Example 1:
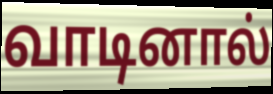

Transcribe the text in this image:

வாடினால்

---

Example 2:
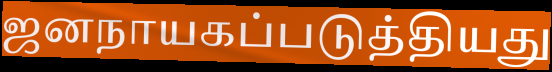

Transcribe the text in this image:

ஜனநாயகப்படுத்தியது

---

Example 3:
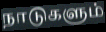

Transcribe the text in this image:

நாடுகளும்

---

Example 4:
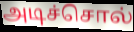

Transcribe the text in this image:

அடிச்சொல்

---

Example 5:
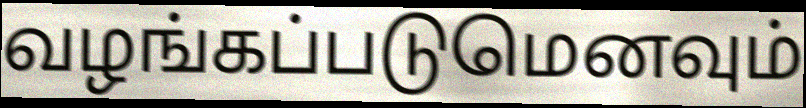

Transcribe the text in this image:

வழங்கப்படுமெனவும்